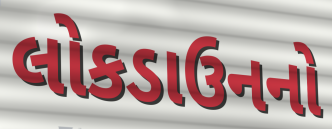
લોકડાઉનનો